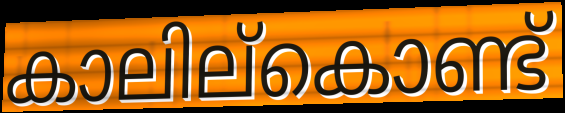
കാലില്കൊണ്ട്